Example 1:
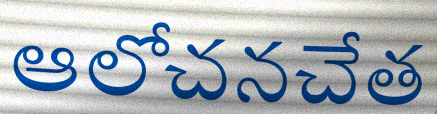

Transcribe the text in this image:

ఆలోచనచేత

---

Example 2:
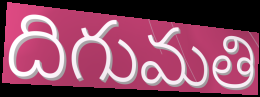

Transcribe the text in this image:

దిగుమతి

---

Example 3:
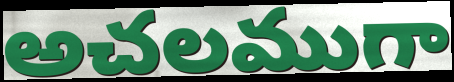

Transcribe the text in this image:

అచలముగా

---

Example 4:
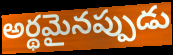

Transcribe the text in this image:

అర్థమైనప్పుడు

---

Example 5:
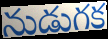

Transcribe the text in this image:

నుడుగక